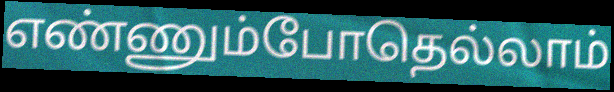
எண்ணும்போதெல்லாம்